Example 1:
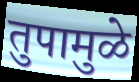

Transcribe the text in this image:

तुपामुळे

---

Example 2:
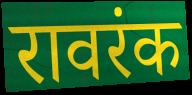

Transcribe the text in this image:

रावरंक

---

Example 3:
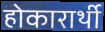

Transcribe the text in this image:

होकारार्थी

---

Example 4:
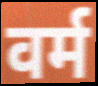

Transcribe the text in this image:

वर्म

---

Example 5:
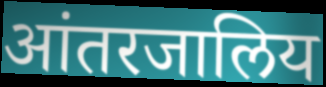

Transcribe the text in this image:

आंतरजालिय